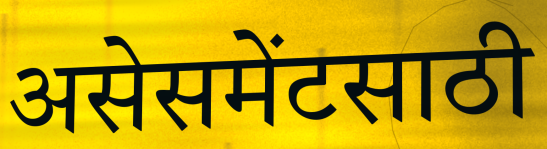
असेसमेंटसाठी